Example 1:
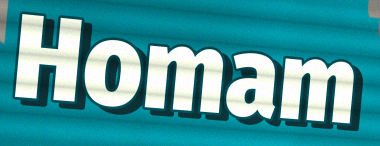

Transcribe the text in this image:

Homam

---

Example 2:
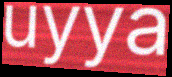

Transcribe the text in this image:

uyya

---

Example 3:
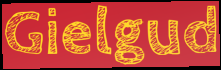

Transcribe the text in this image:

Gielgud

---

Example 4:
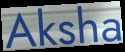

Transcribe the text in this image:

Aksha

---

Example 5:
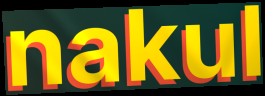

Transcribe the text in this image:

nakul